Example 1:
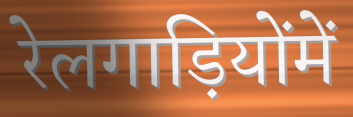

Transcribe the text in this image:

रेलगाड़ियोंमें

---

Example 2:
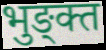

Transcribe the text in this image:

भुङ्क्त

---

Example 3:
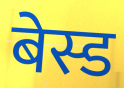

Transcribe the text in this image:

बेस्ड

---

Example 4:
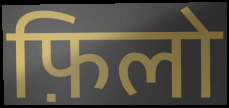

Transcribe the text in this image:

फ़िलो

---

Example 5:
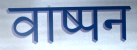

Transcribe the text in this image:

वाष्पन